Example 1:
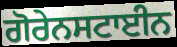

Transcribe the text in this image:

ਗੋਰੇਨਸਟਾਈਨ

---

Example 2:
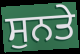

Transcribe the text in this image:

ਸੁਨਤੇ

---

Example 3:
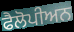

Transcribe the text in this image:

ਫੈਲੋਪੀਅਨ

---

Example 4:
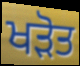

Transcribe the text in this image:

ਖੜੋਤ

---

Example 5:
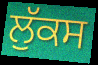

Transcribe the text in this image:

ਲੁੱਕਸ